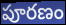
పూరణం